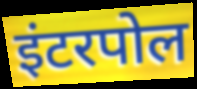
इंटरपोल